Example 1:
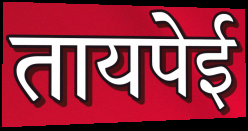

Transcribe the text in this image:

तायपेई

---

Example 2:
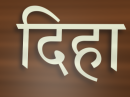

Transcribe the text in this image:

दिहा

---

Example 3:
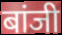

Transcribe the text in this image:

बांजी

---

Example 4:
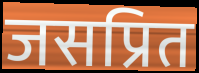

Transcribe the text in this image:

जसप्रित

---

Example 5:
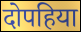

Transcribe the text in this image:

दोपहिया